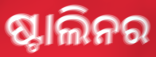
ଷ୍ଟାଲିନର